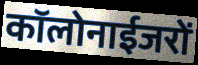
कॉलोनाईजरों